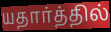
யதார்த்தில்